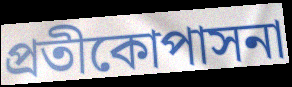
প্রতীকোপাসনা